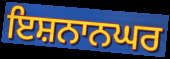
ਇਸ਼ਨਾਨਘਰ